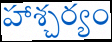
హాశ్చర్యం